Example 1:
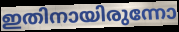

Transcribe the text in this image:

ഇതിനായിരുന്നോ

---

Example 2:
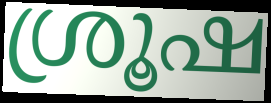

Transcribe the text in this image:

ശ്രൂഷ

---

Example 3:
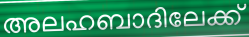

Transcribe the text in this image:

അലഹബാദിലേക്ക്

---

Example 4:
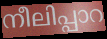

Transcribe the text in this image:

നീലിപ്പാറ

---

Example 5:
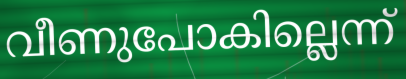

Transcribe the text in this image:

വീണുപോകില്ലെന്ന്